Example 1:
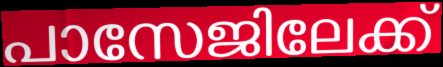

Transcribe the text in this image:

പാസേജിലേക്ക്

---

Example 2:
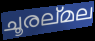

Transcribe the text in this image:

ചൂരല്മല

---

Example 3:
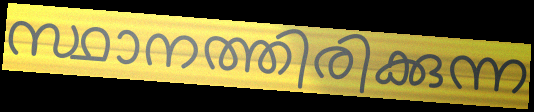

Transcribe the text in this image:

സ്ഥാനത്തിരിക്കുന്ന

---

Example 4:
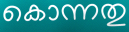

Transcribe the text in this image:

കൊന്നതു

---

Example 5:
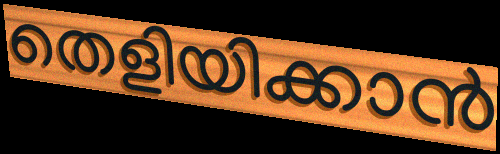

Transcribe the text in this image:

തെളിയിക്കാൻ